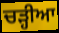
ਚੜ੍ਹੀਆ